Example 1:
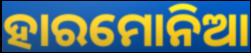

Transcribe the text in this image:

ହାରମୋନିଆ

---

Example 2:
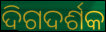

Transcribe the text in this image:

ଦିଗଦର୍ଶକ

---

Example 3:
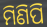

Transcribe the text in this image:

ମିଣିପି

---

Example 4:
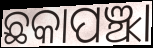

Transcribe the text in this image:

ଛକାପଞ୍ଝା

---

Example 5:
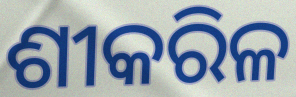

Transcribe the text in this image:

ଶୀକରିଳ